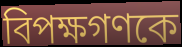
বিপক্ষগণকে